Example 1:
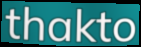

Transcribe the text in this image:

thakto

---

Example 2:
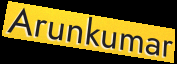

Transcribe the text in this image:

Arunkumar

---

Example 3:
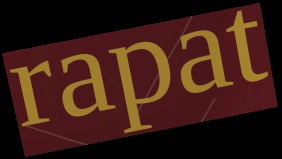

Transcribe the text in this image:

rapat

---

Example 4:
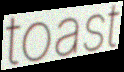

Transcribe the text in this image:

toast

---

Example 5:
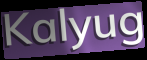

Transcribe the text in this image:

Kalyug